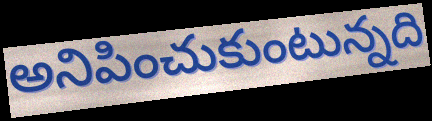
అనిపించుకుంటున్నది